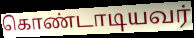
கொண்டாடியவர்